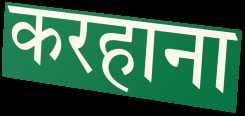
करहाना